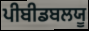
ਪੀਬੀਡਬਲਯੂ